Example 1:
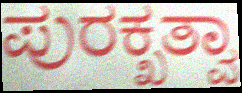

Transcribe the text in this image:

ಪುರಕ್ಖತ್ವಾ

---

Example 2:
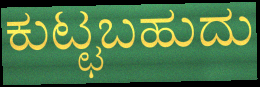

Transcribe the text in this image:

ಕುಟ್ಟಬಹುದು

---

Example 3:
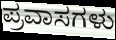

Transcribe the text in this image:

ಪ್ರವಾಸಗಳು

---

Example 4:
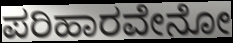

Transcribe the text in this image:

ಪರಿಹಾರವೇನೋ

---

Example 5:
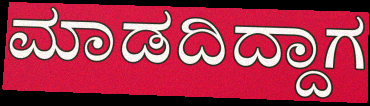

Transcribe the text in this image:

ಮಾಡದಿದ್ದಾಗ